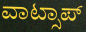
ವಾಟ್ಸಾಪ್